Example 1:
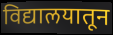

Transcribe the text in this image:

विद्यालयातून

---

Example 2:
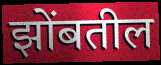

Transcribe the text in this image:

झोंबतील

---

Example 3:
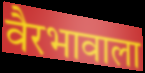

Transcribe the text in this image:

वैरभावाला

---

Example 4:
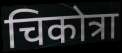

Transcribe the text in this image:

चिकोत्रा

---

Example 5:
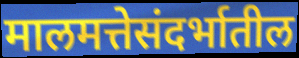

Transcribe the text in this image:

मालमत्तेसंदर्भातील